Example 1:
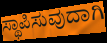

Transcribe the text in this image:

ಸ್ಥಾಪಿಸುವುದಾಗಿ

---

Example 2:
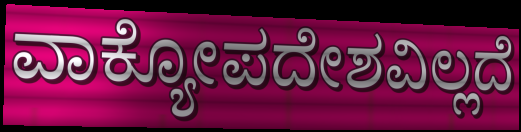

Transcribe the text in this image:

ವಾಕ್ಯೋಪದೇಶವಿಲ್ಲದೆ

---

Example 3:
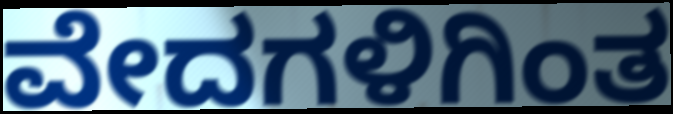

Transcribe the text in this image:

ವೇದಗಳಿಗಿಂತ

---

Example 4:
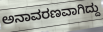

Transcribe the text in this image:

ಅನಾವರಣವಾಗಿದ್ದು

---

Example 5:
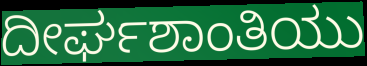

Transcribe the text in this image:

ದೀರ್ಘಶಾಂತಿಯು